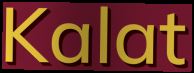
Kalat